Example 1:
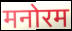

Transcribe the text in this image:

मनोरम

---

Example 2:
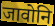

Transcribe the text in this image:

जावोनि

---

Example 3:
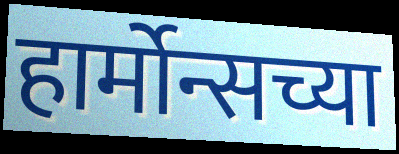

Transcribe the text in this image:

हार्मोन्सच्या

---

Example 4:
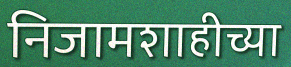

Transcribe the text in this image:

निजामशाहीच्या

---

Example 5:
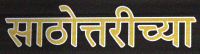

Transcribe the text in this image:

साठोत्तरीच्या